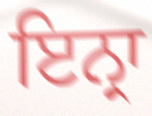
ਇਨ੍ਰਾ